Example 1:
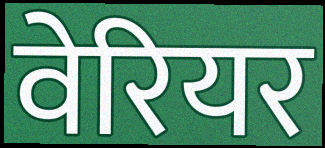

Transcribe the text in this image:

वेरियर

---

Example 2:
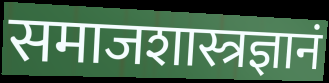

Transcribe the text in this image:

समाजशास्त्रज्ञानं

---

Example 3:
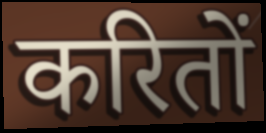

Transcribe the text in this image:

करितों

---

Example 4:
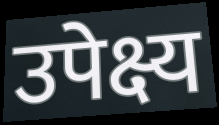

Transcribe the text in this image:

उपेक्ष्य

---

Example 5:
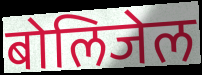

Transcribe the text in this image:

बोलिजेल